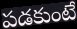
పడకుంటే